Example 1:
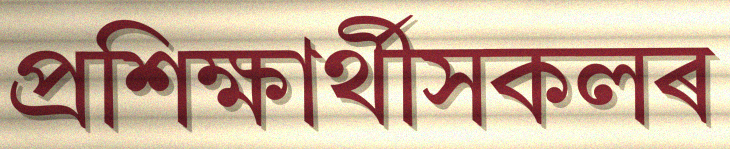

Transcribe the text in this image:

প্ৰশিক্ষাৰ্থীসকলৰ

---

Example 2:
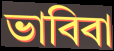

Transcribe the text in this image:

ভাবিবা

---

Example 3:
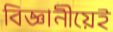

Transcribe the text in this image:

বিজ্ঞানীয়েই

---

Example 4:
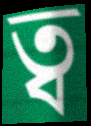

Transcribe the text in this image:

ত্ব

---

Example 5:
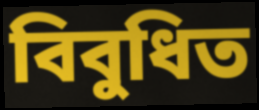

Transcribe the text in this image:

বিবুধিত